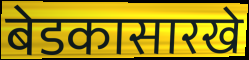
बेडकासारखे